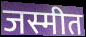
जस्मीत